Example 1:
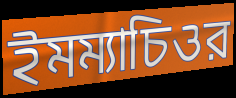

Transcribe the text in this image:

ইমম্যাচিওর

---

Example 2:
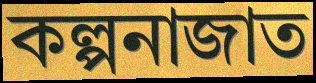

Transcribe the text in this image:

কল্পনাজাত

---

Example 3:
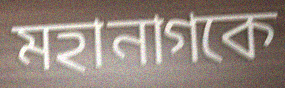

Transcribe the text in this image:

মহানাগকে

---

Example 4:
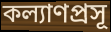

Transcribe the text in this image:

কল্যাণপ্রসূ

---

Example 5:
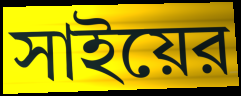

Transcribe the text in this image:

সাইয়ের